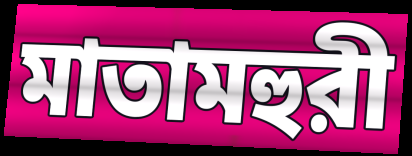
মাতামহুরী